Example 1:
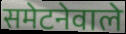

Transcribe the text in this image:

समेटनेवाले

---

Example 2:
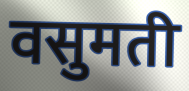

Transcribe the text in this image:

वसुमती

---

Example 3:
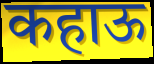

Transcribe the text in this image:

कहाऊ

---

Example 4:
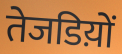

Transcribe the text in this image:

तेजडिय़ों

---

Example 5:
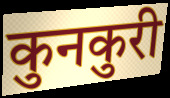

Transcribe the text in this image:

कुनकुरी